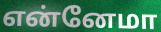
என்னேமா